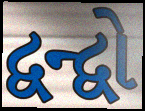
દ્વન્દ્વો